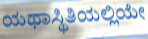
ಯಥಾಸ್ಥಿತಿಯಲ್ಲಿಯೇ